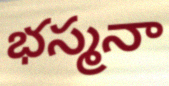
భస్మనా